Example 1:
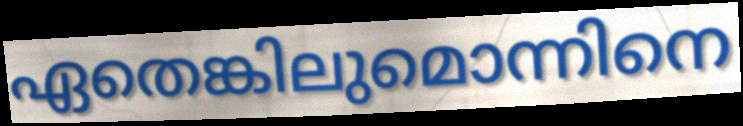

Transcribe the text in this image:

ഏതെങ്കിലുമൊന്നിനെ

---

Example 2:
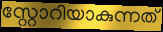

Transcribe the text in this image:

സ്റ്റോറിയാകുന്നത്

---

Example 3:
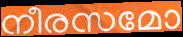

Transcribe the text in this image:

നീരസമോ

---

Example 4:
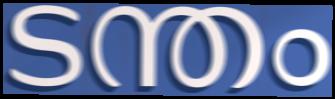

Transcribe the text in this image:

ടന്തം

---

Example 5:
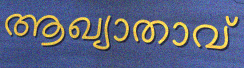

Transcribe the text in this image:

ആഖ്യാതാവ്